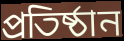
প্ৰতিষ্ঠান